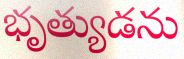
భృత్యుడను